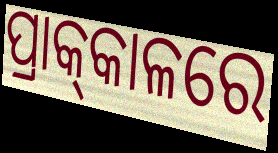
ପ୍ରାକ୍‌କାଳରେ